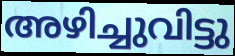
അഴിച്ചുവിട്ടു